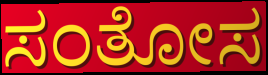
ಸಂತೋಸ